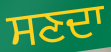
ਸਣਦਾ